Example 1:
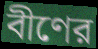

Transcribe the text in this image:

বীণের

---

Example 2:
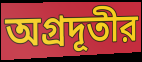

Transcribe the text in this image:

অগ্রদূতীর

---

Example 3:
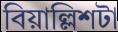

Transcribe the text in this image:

বিয়াল্লিশটা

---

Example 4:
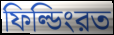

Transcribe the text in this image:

ফিল্ডিংরত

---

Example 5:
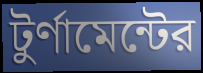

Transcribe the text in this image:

টুর্ণামেন্টের